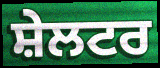
ਸ਼ੇਲਟਰ